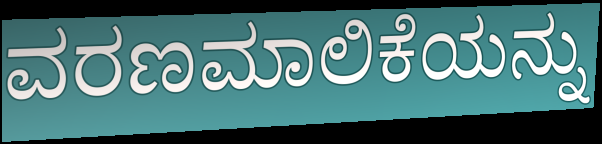
ವರಣಮಾಲಿಕೆಯನ್ನು